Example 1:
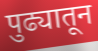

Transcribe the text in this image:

पुढ्यातून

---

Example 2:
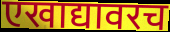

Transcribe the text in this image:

एखाद्यावरच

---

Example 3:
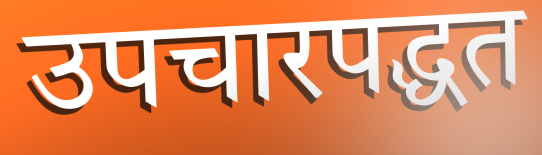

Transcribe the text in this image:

उपचारपद्धत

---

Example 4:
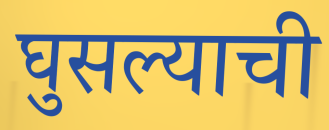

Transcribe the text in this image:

घुसल्याची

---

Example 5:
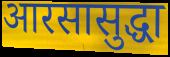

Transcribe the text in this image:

आरसासुद्धा